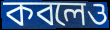
কবলেও